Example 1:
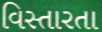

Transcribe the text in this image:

વિસ્તારતા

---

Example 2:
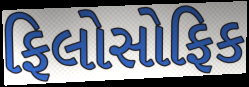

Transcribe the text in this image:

ફિલોસોફિક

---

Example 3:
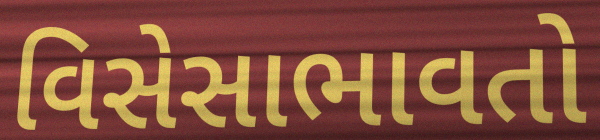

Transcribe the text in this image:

વિસેસાભાવતો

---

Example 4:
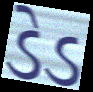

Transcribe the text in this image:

ડેડ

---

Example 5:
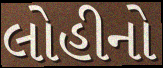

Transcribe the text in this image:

લોહીનો